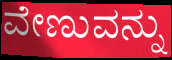
ವೇಣುವನ್ನು